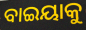
ବାଇୟାକୁ